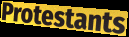
Protestants